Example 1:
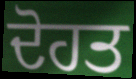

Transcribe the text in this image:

ਦੋਹਤ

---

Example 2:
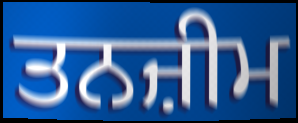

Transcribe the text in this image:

ਤਨਜ਼ੀਮ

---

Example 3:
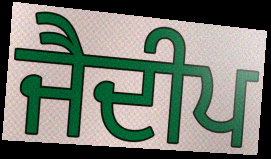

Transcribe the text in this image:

ਜੈਦੀਪ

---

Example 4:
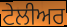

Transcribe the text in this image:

ਟੇਲੀਅਰ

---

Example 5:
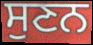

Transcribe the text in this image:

ਸੁਣਨ